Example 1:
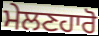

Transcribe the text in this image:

ਮੇਲਣਹਾਰੋ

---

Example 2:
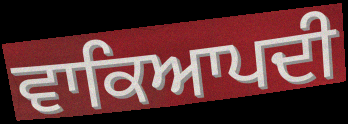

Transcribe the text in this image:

ਵਾਕਿਆਪਦੀ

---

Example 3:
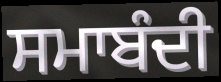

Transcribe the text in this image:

ਸਮਾਬੰਦੀ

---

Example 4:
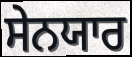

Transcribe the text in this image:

ਸੇਨਯਾਰ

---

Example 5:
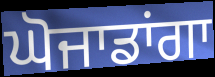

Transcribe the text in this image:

ਘੋਜਾਡਾਂਗਾ